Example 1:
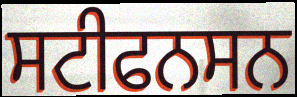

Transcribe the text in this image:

ਸਟੀਫਨਸਨ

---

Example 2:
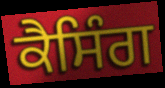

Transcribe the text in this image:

ਕੈਸਿੰਗ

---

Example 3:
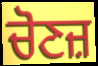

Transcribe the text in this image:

ਚੋਣਜ਼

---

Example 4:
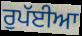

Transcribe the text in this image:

ਰੁਪੱਈਆ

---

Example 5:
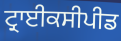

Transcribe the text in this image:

ਟ੍ਰਾਈਕਸੀਪੀਡ